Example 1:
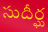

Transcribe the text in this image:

సుదీర్ఘ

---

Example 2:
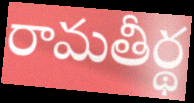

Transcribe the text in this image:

రామతీర్థ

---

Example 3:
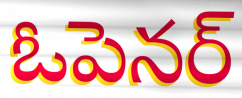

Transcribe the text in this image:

ఓపెనర్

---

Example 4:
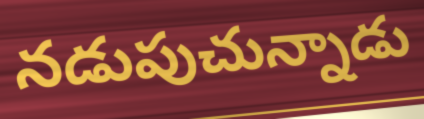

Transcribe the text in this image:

నడుపుచున్నాడు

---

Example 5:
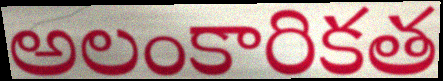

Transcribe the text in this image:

అలంకారికత